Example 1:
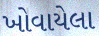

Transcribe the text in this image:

ખોવાયેલા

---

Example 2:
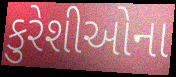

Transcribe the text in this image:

કુરેશીઓના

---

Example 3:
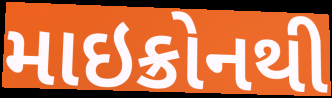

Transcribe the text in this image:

માઇક્રોનથી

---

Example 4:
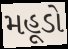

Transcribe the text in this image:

મહૂડો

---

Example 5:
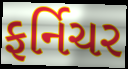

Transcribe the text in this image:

ફર્નિચર